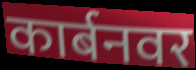
कार्बनवर